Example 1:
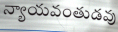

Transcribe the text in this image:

న్యాయవంతుడవు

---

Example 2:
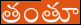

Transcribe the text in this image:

తంతూ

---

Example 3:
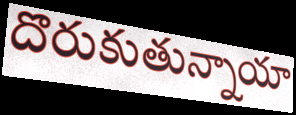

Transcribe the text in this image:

దొరుకుతున్నాయా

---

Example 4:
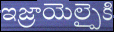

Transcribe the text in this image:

ఇజ్రాయెల్పైకి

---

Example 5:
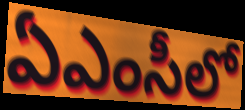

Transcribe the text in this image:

ఏఎంసీలో